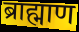
ब्राह्माण